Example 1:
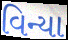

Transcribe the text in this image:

વિન્યા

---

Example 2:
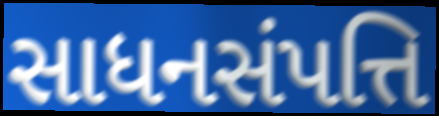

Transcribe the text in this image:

સાધનસંપત્તિ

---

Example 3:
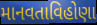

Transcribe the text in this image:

માનવતાવિહોણા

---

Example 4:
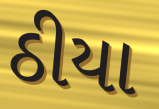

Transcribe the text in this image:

ઠીયા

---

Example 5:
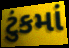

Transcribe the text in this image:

ટુંકમાં